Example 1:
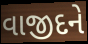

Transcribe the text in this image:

વાજીદને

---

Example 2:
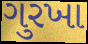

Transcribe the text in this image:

ગુરખા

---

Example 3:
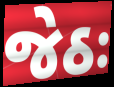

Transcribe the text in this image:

જેઠઃ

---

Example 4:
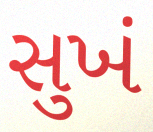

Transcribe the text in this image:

સુખં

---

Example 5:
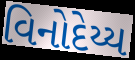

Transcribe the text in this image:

વિનોદેય્ય